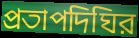
প্রতাপদিঘির